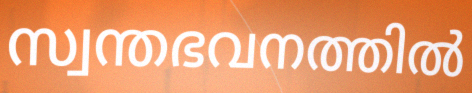
സ്വന്തഭവനത്തിൽ